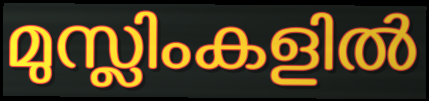
മുസ്ലിംകളിൽ